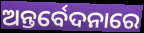
ଅନ୍ତର୍ବେଦନାରେ